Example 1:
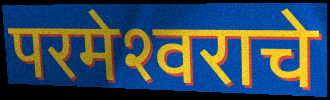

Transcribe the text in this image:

परमेश्वराचे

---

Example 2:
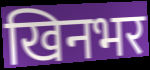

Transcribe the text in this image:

खिनभर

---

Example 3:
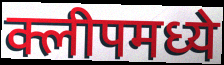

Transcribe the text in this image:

क्लीपमध्ये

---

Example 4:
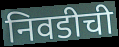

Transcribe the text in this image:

निवडीची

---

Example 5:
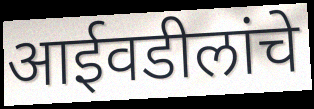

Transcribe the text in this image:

आईवडीलांचे